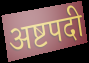
अष्टपदी